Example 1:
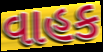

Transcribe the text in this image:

વાહક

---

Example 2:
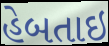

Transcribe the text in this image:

હેબતાઇ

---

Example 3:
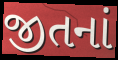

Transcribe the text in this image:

જીતનાં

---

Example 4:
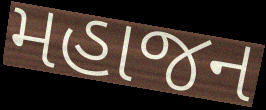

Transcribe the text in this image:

મહાજન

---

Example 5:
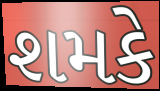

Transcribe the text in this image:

શમકે